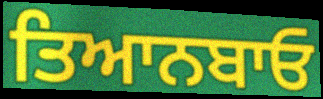
ਤਿਆਨਬਾਓ